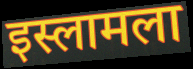
इस्लामला